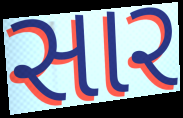
સાર